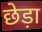
छेड़ा